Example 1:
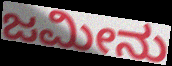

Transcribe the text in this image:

ಜಮೀನು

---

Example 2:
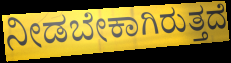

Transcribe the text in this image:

ನೀಡಬೇಕಾಗಿರುತ್ತದೆ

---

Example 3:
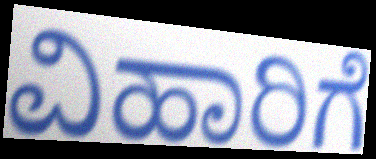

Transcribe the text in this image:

ವಿಹಾರಿಗೆ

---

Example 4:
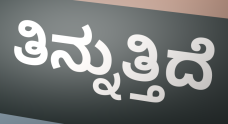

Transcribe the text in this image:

ತಿನ್ನುತ್ತಿದೆ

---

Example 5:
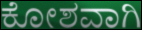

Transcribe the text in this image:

ಕೋಶವಾಗಿ